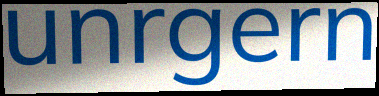
unrgern